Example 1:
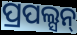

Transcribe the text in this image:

ପ୍ରପଲ୍ସନ୍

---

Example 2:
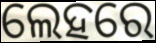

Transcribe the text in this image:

ଲେହରେ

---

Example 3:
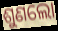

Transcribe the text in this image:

ଶୁଣଲୋ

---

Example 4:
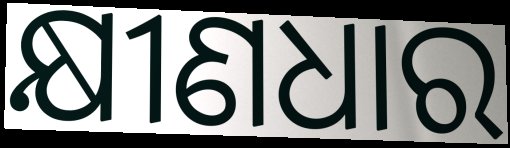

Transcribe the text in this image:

କ୍ଷୀଣଧାର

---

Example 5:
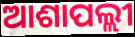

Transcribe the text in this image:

ଆଶାପଲ୍ଲୀ